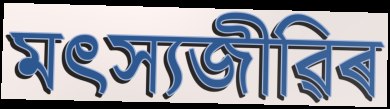
মৎস্যজীৱিৰ